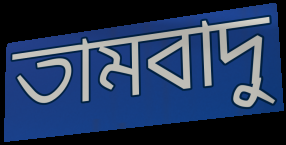
তামবাদু